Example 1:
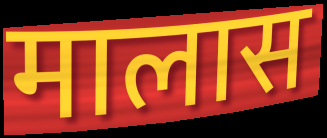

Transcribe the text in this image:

मालास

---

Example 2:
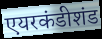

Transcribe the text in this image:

एयरकंडीशंड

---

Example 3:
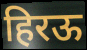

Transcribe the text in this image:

हिरऊ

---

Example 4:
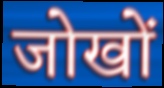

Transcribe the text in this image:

जोखों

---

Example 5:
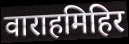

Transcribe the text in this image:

वाराहमिहिर